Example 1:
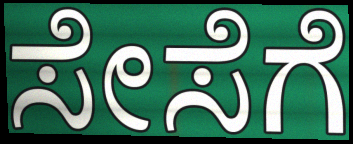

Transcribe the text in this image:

ಸೇಸೆಗೆ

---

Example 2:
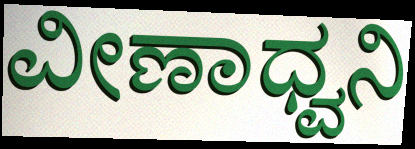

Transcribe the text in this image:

ವೀಣಾಧ್ವನಿ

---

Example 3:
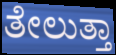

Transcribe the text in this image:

ತೇಲುತ್ತಾ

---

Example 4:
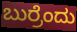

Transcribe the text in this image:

ಬುರ್ರೆಂದು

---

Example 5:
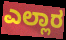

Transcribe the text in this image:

ಎಲ್ಲಾರ